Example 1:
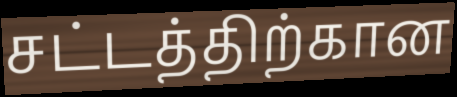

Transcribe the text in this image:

சட்டத்திற்கான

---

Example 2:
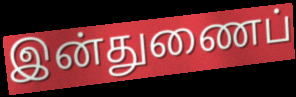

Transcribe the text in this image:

இன்துணைப்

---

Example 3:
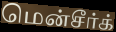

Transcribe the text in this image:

மென்சீர்க்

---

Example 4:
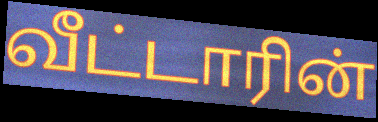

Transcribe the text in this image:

வீட்டாரின்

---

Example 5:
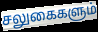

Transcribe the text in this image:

சலுகைகளும்